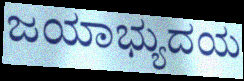
ಜಯಾಭ್ಯುದಯ